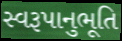
સ્વરૂપાનુભૂતિ